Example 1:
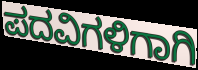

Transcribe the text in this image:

ಪದವಿಗಳಿಗಾಗಿ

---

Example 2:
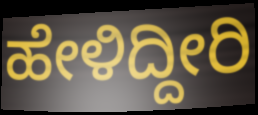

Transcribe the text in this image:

ಹೇಳಿದ್ದೀರಿ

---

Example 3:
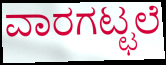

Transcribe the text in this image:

ವಾರಗಟ್ಟಲೆ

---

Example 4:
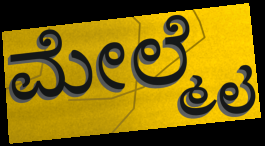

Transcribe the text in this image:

ಮೇಲ್ಮೈ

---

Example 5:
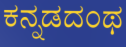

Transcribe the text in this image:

ಕನ್ನಡದಂಥ